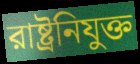
রাষ্ট্রনিযুক্ত